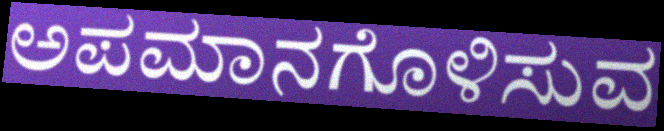
ಅಪಮಾನಗೊಳಿಸುವ